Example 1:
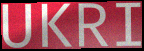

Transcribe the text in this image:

UKRI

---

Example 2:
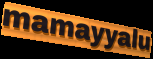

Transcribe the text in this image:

mamayyalu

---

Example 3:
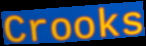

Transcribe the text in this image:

Crooks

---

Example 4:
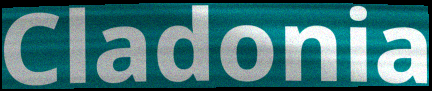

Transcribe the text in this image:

Cladonia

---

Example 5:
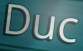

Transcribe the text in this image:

Duc